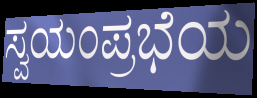
ಸ್ವಯಂಪ್ರಭೆಯ